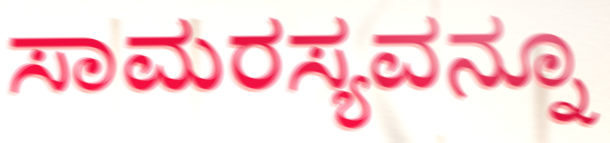
ಸಾಮರಸ್ಯವನ್ನೂ